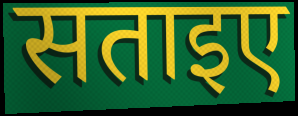
सताइए